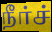
நீர்ச்